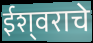
ईश्वराचे